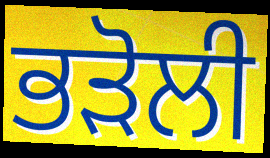
ਭੜੋਲੀ